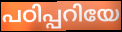
പഠിപ്പറിയേ